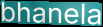
bhanela